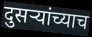
दुसऱ्यांच्याच